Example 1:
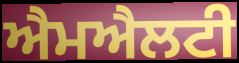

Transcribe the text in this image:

ਐਮਐਲਟੀ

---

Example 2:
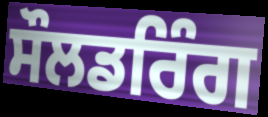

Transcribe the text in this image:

ਸੌਲਡਰਿੰਗ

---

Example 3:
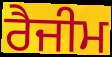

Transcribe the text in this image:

ਰੈਜੀਮ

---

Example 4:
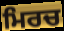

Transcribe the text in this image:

ਮਿਰਚ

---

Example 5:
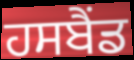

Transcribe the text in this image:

ਹਸਬੈਂਡ